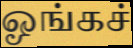
ஓங்கச்